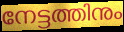
നേട്ടത്തിനും